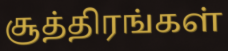
சூத்திரங்கள்